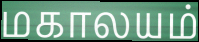
மகாலயம்